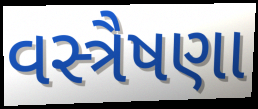
વસ્ત્રૈષણા